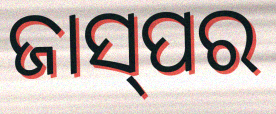
ଜାସ୍‌ପର